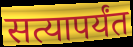
सत्यापर्यंत